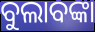
ବୁଲାବଙ୍କା